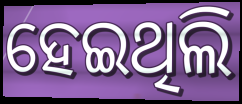
ହେଇଥିଲି